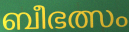
ബീഭത്സം